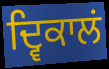
ਦ੍ਵਿਕਾਲਂ